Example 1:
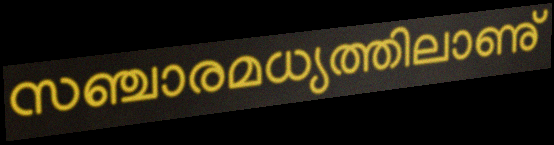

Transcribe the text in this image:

സഞ്ചാരമധ്യത്തിലാണു്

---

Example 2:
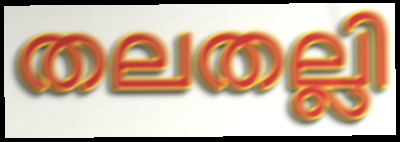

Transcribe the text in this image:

തലതല്ലി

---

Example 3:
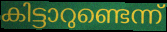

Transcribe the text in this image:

കിട്ടാറുണ്ടെന്ന്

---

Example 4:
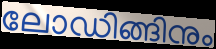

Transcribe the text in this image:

ലോഡിങ്ങിനും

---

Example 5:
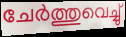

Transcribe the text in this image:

ചേർത്തുവെച്ചു്